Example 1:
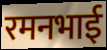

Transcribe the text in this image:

रमनभाई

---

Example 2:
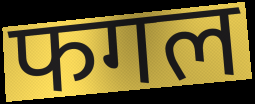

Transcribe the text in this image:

फगल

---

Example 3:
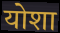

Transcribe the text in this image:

योशा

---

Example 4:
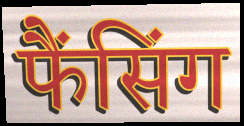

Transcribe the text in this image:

फैंसिंग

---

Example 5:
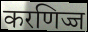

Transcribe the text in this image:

करणिज्ज